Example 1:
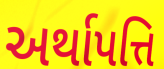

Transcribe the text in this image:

અર્થાપત્તિ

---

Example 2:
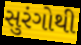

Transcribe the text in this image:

સુરંગોથી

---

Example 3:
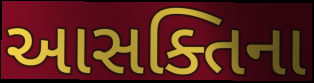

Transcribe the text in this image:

આસક્તિના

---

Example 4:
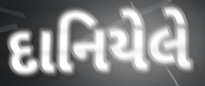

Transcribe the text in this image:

દાનિયેલે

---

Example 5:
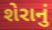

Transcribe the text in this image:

શેરાનું